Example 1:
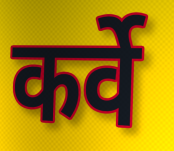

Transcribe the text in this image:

कर्वे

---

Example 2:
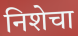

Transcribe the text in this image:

निशेचा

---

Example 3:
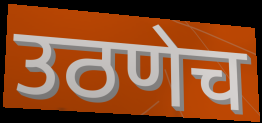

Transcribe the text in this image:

उठणेच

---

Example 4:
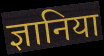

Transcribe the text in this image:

ज्ञानिया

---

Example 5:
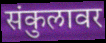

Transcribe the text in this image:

संकुलावर